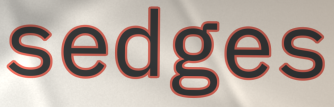
sedges